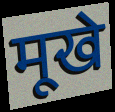
मूखे